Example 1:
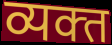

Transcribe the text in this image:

व्यक्‍त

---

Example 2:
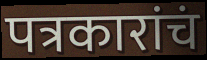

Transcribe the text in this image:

पत्रकारांचं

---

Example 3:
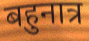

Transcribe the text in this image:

बहुनात्र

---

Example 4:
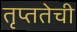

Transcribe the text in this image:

तृप्ततेची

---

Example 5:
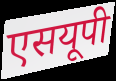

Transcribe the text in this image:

एसयूपी